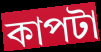
কাপটা